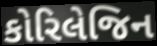
કોરિલેજિન